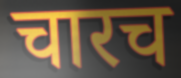
चारच